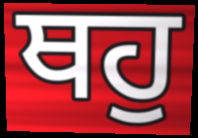
ਥਹੁ